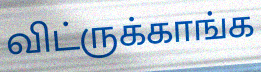
விட்ருக்காங்க